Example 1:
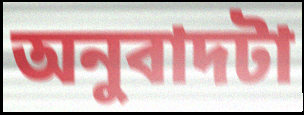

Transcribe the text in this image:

অনুবাদটা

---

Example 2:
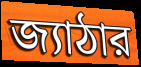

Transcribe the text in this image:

জ্যাঠার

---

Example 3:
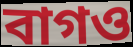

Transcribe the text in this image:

বাগও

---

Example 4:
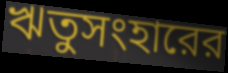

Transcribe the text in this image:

ঋতুসংহারের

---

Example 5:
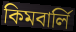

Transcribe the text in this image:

কিমবার্লি